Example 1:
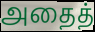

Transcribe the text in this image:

அதைத்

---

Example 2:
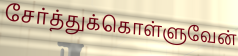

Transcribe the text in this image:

சேர்த்துக்கொள்ளுவேன்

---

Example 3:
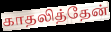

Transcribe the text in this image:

காதலித்தேன்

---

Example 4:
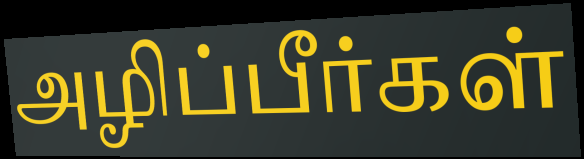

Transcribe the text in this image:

அழிப்பீர்கள்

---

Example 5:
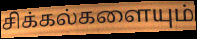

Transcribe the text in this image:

சிக்கல்களையும்